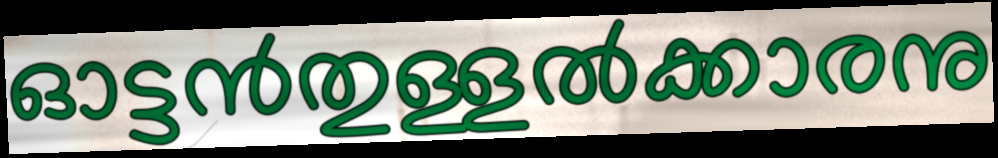
ഓട്ടൻതുള്ളൽക്കാരനു